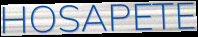
HOSAPETE